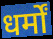
धर्मों